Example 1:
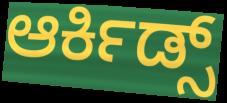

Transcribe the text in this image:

ಆರ್ಕಿಡ್ಸ್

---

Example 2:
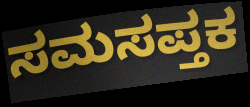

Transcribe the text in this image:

ಸಮಸಪ್ತಕ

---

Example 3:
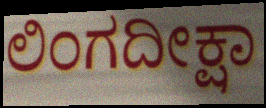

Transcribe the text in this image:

ಲಿಂಗದೀಕ್ಷಾ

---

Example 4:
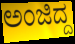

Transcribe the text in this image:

ಅಂಜಿದ್ದ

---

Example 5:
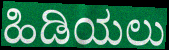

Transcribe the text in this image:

ಹಿಡಿಯಲು